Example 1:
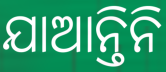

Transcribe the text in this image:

ଯାଆନ୍ତିନି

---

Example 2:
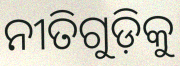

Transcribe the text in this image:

ନୀତିଗୁଡ଼ିକୁ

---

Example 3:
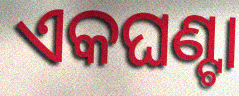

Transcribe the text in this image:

ଏକଘଣ୍ଟା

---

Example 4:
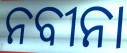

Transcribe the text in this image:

ନବୀନା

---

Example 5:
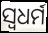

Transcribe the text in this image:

ସ୍ଵଧର୍ମ